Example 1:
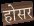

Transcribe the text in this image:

होसर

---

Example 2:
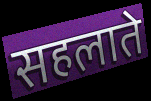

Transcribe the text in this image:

सहलाते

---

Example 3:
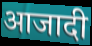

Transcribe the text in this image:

आजादी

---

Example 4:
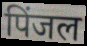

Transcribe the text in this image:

पिंजल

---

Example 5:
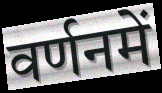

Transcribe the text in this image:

वर्णनमें